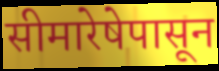
सीमारेषेपासून